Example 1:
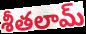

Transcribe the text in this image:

శీతలామ్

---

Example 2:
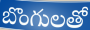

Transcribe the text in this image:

బొంగులతో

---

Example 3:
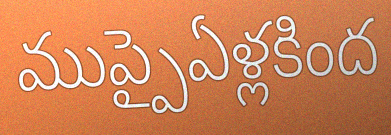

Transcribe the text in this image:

ముప్పైఏళ్లకింద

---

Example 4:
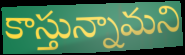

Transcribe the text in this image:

కాస్తున్నామని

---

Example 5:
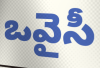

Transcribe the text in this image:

ఒవైసీ